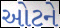
ઓટને